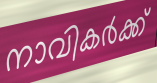
നാവികർക്ക്